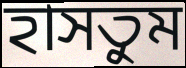
হাসতুম